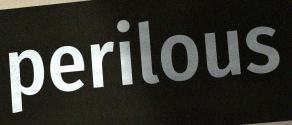
perilous